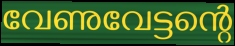
വേണുവേട്ടന്റെ